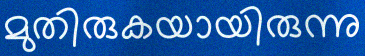
മുതിരുകയായിരുന്നു